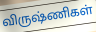
விருஷ்ணிகள்